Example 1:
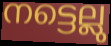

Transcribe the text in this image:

നട്ടെല്ലു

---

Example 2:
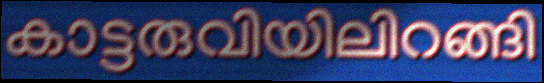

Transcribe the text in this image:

കാട്ടരുവിയിലിറങ്ങി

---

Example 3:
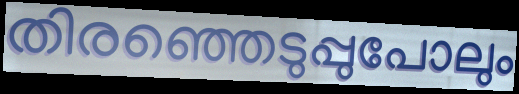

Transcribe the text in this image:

തിരഞ്ഞെടുപ്പുപോലും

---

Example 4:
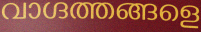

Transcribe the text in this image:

വാഗ്ദത്തങ്ങളെ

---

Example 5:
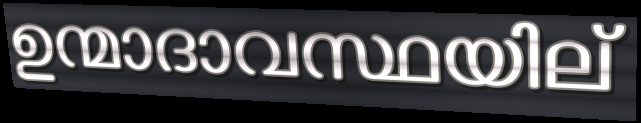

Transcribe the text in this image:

ഉന്മാദാവസ്ഥയില്